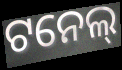
ଟନେଲ୍